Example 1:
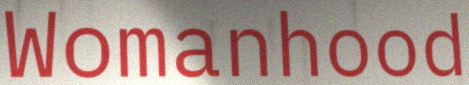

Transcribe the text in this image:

Womanhood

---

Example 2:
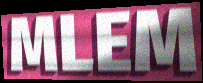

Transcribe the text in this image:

MLEM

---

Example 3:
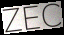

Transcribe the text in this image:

ZEC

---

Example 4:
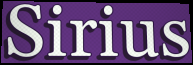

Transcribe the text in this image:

Sirius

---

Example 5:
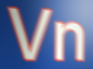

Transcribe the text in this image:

Vn